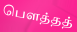
பௌத்தத்